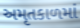
અમૃતકાળમાં